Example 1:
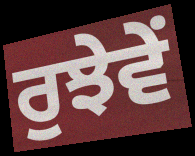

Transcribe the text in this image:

ਰੁਝੇਵੇਂ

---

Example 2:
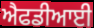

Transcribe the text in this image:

ਐਫਡੀਆਈ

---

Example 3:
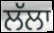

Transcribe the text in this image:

ਲੱਲਾ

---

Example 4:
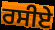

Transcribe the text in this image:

ਰਸੀਏ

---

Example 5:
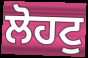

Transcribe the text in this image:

ਲੋਹਟੁ